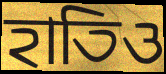
হাতিও